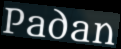
Padan